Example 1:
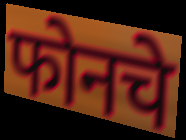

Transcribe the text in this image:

फोनचे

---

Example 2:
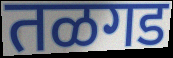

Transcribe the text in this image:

तळगड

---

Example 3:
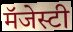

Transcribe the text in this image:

मॅजेस्टी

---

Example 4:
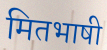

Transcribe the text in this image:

मितभाषी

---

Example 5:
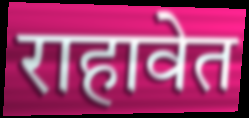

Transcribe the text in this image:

राहावेत